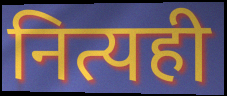
नित्यही